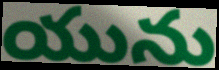
యును